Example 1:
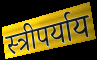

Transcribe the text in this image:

स्त्रीपर्याय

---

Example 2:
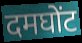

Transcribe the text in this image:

दमघोंट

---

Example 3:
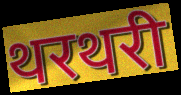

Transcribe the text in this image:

थरथरी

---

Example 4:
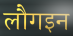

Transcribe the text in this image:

लौगइन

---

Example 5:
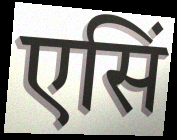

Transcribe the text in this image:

एसिं